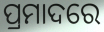
ପ୍ରମାଦରେ